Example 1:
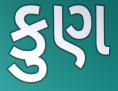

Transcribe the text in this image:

કુણ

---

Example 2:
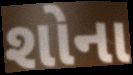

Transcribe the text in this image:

શોના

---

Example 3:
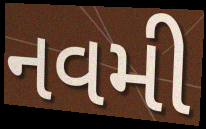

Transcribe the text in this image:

નવમી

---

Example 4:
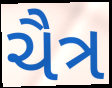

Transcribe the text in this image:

ચૈત્ર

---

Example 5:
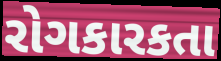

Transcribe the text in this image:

રોગકારકતા